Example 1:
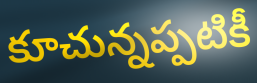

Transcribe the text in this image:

కూచున్నప్పటికీ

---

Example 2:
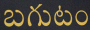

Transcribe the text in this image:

బగుటం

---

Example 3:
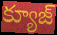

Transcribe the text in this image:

క్యూజ్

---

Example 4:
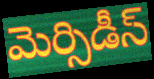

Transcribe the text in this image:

మెర్సిడీస్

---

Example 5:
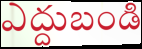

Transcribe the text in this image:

ఎద్దుబండి